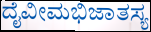
ದೈವೀಮಭಿಜಾತಸ್ಯ